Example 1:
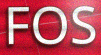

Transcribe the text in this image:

FOS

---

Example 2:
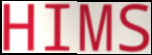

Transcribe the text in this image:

HIMS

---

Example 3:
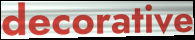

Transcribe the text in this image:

decorative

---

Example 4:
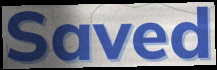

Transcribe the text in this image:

Saved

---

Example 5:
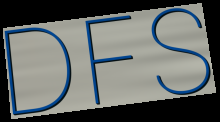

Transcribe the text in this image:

DFS